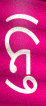
ନ୍ତି